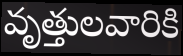
వృత్తులవారికి